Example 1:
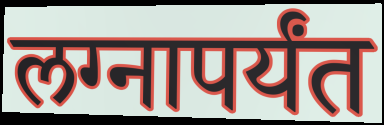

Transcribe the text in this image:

लग्नापर्यंत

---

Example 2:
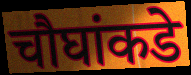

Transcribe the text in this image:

चौघांकडे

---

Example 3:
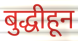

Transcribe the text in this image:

बुद्धीहून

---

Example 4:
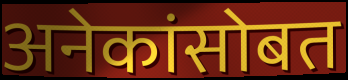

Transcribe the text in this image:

अनेकांसोबत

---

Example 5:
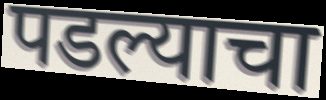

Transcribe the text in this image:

पडल्याचा